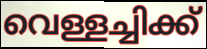
വെള്ളച്ചിക്ക്